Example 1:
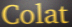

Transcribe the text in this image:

Colat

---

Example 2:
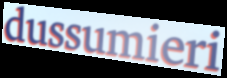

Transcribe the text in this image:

dussumieri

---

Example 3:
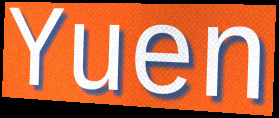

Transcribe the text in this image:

Yuen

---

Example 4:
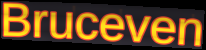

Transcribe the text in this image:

Bruceven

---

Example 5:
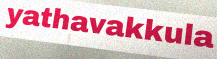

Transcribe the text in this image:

yathavakkula